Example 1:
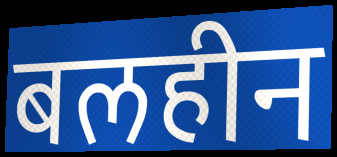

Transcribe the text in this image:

बलहीन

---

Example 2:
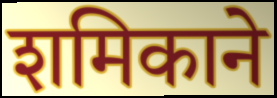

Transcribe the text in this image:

शमिकाने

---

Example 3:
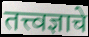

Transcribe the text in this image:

तत्त्वज्ञाचे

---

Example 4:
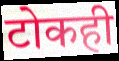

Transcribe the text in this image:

टोकही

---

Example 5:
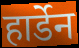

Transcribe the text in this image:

हार्डेन